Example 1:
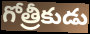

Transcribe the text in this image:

గోత్రీకుడు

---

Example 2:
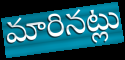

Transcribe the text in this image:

మారినట్లు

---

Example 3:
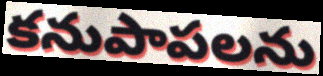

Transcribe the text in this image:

కనుపాపలను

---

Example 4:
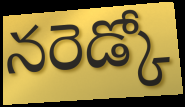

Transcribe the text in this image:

నరెడ్కో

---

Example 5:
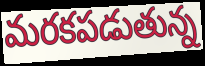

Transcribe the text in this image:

మరకపడుతున్న